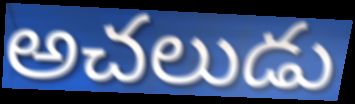
అచలుడు